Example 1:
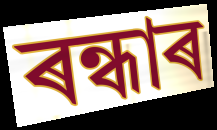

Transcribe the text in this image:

ৰন্ধাৰ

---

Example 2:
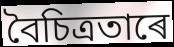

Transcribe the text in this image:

বৈচিত্ৰতাৰে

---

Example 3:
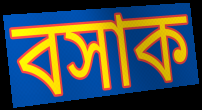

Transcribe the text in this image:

বসাক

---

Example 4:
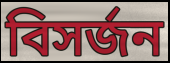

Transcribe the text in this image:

বিসৰ্জন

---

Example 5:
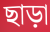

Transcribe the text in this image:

ছাড়া